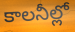
కాలనీల్లో